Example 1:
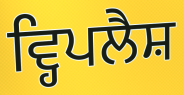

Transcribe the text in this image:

ਵ੍ਹਿਪਲੈਸ਼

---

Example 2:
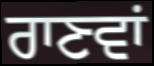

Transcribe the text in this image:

ਰਾਣਵਾਂ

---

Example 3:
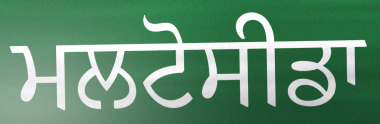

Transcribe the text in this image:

ਮਲਟੋਸੀਡਾ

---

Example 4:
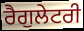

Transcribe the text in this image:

ਰੈਗੁਲੇਟਰੀ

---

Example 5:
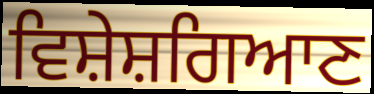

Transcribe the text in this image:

ਵਿਸ਼ੇਸ਼ਗਿਆਣ